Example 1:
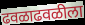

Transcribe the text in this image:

ढवळाढवळीला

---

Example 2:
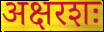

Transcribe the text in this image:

अक्षरशः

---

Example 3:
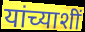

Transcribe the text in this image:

यांच्याशीं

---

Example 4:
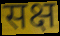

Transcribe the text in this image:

सक्ष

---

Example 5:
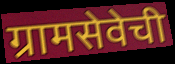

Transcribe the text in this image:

ग्रामसेवेची